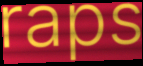
raps